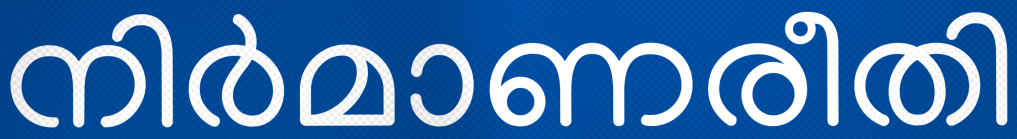
നിർമാണരീതി